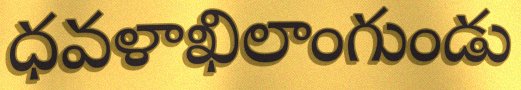
ధవళాఖిలాంగుండు